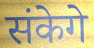
संकेगे